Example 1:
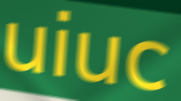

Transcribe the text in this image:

uiuc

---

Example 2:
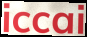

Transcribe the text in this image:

iccai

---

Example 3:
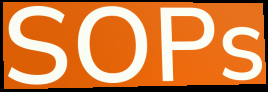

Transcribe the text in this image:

SOPs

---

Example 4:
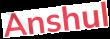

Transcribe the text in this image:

Anshul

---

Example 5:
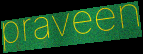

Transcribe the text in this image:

praveen